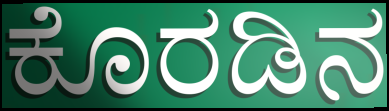
ಕೊರಡಿನ